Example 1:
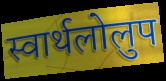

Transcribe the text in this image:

स्वार्थलोलुप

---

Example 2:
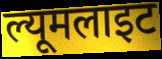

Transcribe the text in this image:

ल्यूमलाइट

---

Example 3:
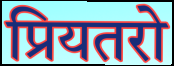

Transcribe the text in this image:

प्रियतरो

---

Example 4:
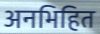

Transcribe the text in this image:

अनभिहित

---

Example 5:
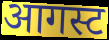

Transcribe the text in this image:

आगस्ट